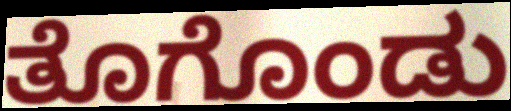
ತೊಗೊಂಡು